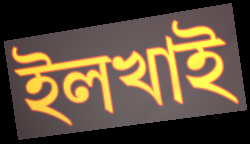
ইলখাই